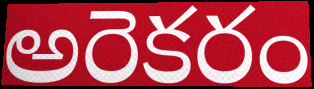
అరెకరం